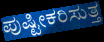
ಪುಷ್ಟೀಕರಿಸುತ್ತ